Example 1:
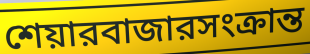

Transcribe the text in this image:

শেয়ারবাজারসংক্রান্ত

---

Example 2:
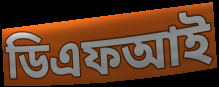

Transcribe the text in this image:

ডিএফআই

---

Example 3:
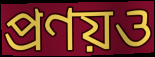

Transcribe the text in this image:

প্রণয়ও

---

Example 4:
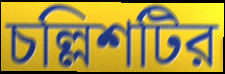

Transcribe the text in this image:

চল্লিশটির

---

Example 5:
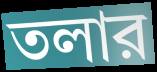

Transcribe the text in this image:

তলার